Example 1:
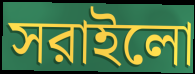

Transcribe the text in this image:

সরাইলো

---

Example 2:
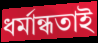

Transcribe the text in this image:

ধর্মান্ধতাই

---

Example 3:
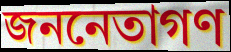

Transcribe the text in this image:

জননেতাগণ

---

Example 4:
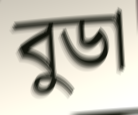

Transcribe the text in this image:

বুডা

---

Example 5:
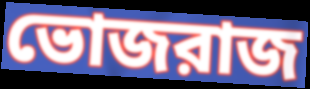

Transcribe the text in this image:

ভোজরাজ